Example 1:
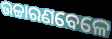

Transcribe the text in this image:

ଉଚ୍ଚାରଣବେଳେ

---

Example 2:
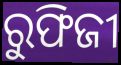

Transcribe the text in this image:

ରୁଫିଜୀ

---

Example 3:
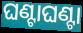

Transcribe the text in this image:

ଘଣ୍ଟାଘଣ୍ଟା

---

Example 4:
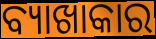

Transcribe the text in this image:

ବ୍ୟାଖାକାର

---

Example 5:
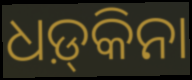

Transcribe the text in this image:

ଧଡ଼୍‍କିନା